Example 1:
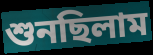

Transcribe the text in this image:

শুনছিলাম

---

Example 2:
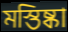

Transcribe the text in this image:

মস্তিষ্কা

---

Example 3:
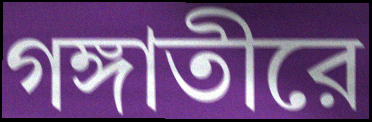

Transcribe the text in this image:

গঙ্গাতীরে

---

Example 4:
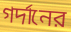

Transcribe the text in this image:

গর্দানের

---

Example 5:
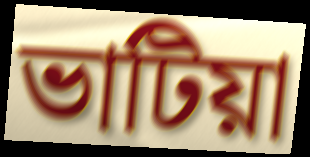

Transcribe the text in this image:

ভাটিয়া